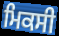
ਮਿਕਸੀ